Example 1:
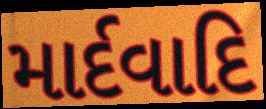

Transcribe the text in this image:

માર્દવાદિ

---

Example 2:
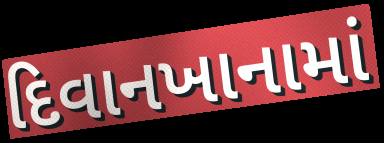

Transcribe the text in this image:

દિવાનખાનામાં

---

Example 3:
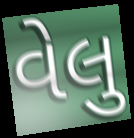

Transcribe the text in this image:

વેલુ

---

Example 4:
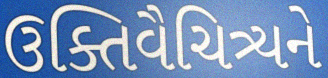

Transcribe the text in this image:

ઉક્તિવૈચિત્ર્યને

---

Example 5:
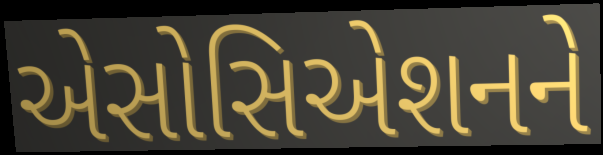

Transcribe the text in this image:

એસોસિએશનને